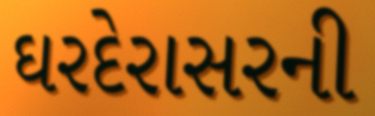
ઘરદેરાસરની